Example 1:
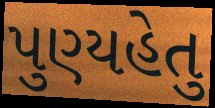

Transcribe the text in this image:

પુણ્યહેતુ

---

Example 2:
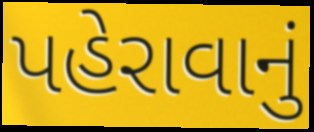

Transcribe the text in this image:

પહેરાવાનું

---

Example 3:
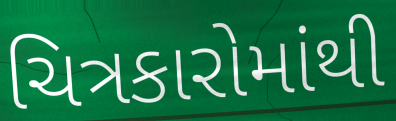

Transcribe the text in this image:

ચિત્રકારોમાંથી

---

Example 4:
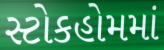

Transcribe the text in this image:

સ્ટોકહોમમાં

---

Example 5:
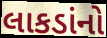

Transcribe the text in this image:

લાકડાંનો